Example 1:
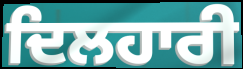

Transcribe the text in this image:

ਦਿਲਹਾਰੀ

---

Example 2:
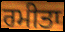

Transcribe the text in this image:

ਰਮੀਤਾ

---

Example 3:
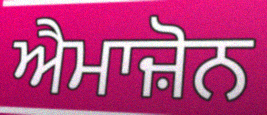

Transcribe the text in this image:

ਐਮਾਜ਼ੋਨ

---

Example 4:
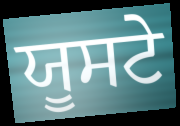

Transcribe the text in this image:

ਯੂਸਟੇ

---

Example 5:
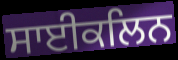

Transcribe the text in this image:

ਸਾਈਕਲਿਨ